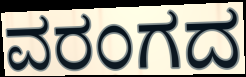
ವರಂಗದ